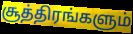
சூத்திரங்களும்